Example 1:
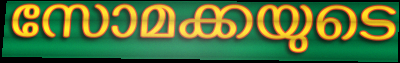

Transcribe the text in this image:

സോമക്കയുടെ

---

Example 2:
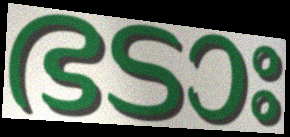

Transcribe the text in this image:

ഭടാഃ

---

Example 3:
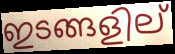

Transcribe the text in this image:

ഇടങ്ങളില്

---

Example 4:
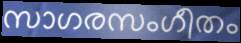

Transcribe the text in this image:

സാഗരസംഗീതം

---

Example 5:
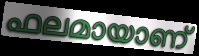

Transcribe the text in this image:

ഫലമായാണ്